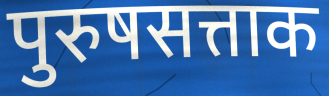
पुरुषसत्ताक